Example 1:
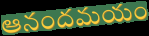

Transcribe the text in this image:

ఆనందమయం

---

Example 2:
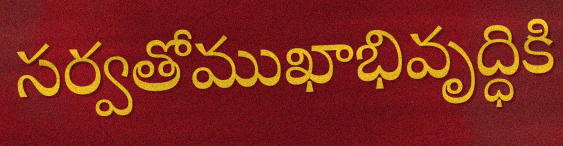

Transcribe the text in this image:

సర్వతోముఖాభివృద్ధికి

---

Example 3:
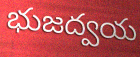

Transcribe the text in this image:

భుజద్వయ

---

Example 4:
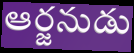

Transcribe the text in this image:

ఆర్జనుడు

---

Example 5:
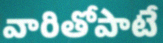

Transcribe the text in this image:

వారితోపాటే